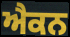
ਐਕਨ